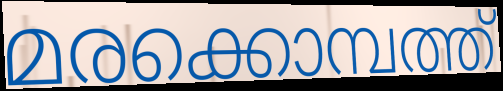
മരക്കൊമ്പത്ത്